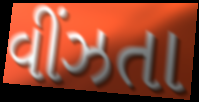
વીંઝતા